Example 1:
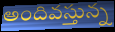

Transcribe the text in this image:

అందివస్తున్న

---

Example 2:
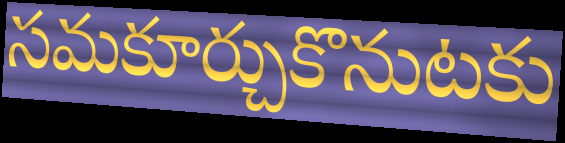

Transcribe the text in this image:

సమకూర్చుకొనుటకు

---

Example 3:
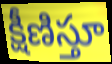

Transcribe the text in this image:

క్షీణిస్తూ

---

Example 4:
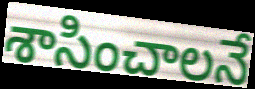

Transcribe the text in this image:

శాసించాలనే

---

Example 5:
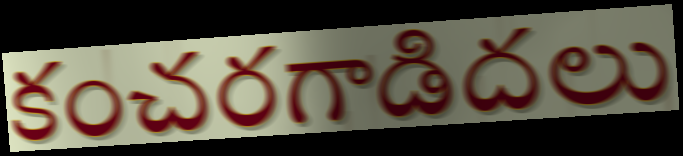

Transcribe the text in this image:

కంచరగాడిదలు